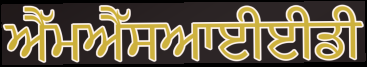
ਐੱਮਐੱਸਆਈਈਡੀ